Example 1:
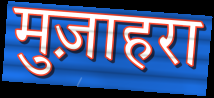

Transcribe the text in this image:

मुज़ाहरा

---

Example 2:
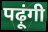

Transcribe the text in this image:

पढ़ूंगी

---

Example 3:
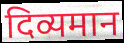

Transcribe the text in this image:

दिव्यमान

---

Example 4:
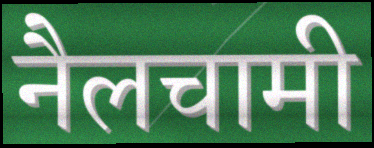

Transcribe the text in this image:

नैलचामी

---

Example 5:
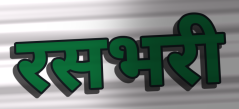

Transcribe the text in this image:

रसभरी